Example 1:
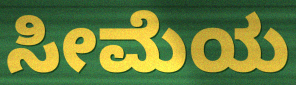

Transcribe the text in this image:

ಸೀಮೆಯ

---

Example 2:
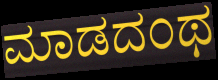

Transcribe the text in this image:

ಮಾಡದಂಥ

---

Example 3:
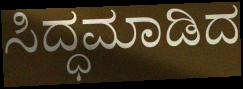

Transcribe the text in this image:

ಸಿದ್ಧಮಾಡಿದ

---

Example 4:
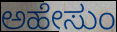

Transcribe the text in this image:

ಅಹೇಸುಂ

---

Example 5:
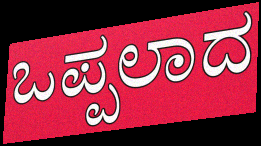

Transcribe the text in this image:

ಒಪ್ಪಲಾದ